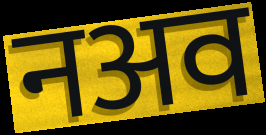
नअव